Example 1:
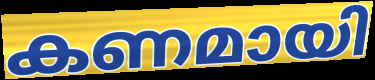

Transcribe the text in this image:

കണമായി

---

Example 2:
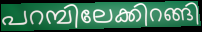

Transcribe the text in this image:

പറമ്പിലേക്കിറങ്ങി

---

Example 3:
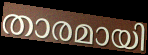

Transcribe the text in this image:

താരമായി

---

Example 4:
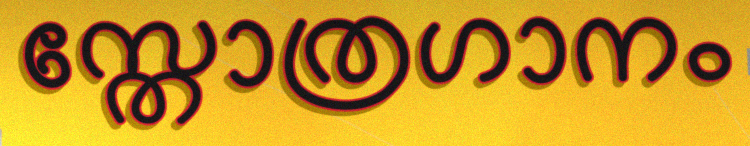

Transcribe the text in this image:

സ്തോത്രഗാനം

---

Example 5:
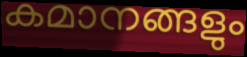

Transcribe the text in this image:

കമാനങ്ങളും